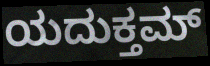
ಯದುಕ್ತಮ್